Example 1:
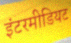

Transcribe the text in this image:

इंटरमीडियट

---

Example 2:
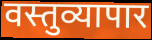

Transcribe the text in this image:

वस्तुव्यापार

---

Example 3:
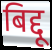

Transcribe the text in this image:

बिद्दू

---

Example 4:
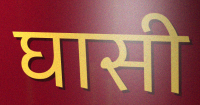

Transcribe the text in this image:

घासी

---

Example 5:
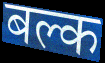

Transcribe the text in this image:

बल्क